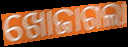
ଖୋଜାଗଲା